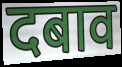
दबाव